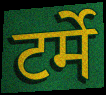
टर्मे